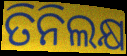
ତିନିଲକ୍ଷ